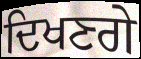
ਦਿਖਣਗੇ